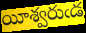
యీశ్వరుఁడ